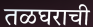
तळघराची